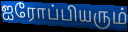
ஐரோப்பியரும்